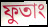
ফুতাং